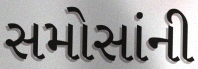
સમોસાંની